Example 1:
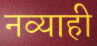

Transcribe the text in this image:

नव्याही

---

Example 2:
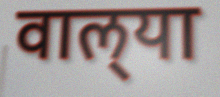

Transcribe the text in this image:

वाल्या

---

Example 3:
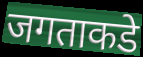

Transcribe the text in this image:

जगताकडे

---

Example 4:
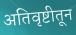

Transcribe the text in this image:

अतिवृष्टीतून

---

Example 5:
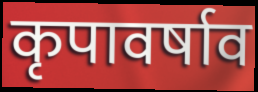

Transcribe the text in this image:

कृपावर्षाव